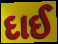
દાઈ